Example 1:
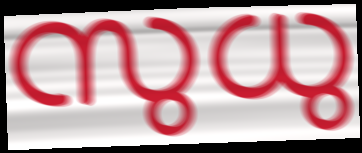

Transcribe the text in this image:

സുധു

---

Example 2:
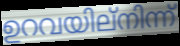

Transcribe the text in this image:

ഉറവയില്നിന്ന്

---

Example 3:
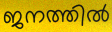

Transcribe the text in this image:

ജനത്തിൽ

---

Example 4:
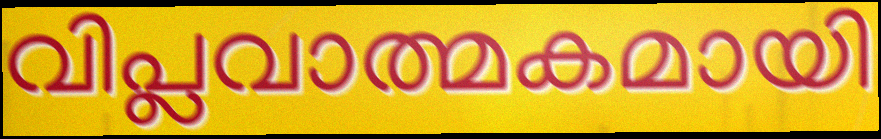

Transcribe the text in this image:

വിപ്ലവാത്മകമായി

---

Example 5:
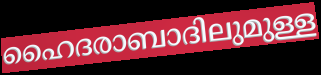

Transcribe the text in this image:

ഹൈദരാബാദിലുമുള്ള